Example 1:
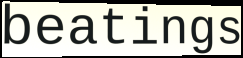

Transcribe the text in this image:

beatings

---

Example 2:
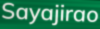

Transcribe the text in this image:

Sayajirao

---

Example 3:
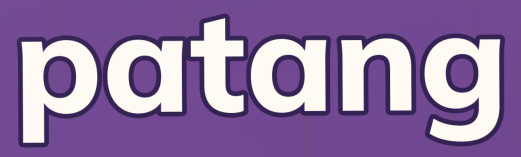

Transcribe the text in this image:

patang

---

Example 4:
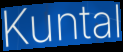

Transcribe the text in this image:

Kuntal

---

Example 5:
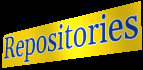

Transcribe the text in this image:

Repositories